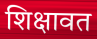
शिक्षावत